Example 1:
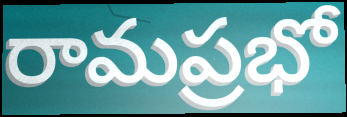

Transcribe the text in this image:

రామప్రభో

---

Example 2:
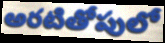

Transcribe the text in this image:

అరటితోపులో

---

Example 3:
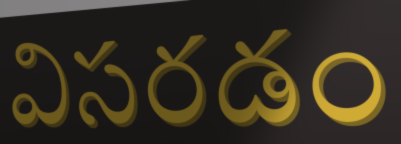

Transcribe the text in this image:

విసరడం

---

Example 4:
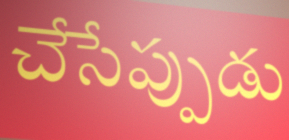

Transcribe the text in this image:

చేసేప్పుడు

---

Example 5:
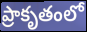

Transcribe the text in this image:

ప్రాకృతంలో